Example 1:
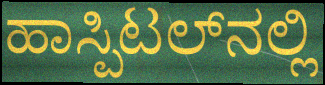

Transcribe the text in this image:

ಹಾಸ್ಪಿಟಲ್‌ನಲ್ಲಿ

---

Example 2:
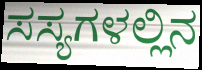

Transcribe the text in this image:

ಸಸ್ಯಗಳಲ್ಲಿನ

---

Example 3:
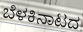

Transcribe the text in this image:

ಬೆಳಕಿನಾಟದ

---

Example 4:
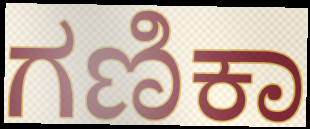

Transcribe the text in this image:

ಗಣಿಕಾ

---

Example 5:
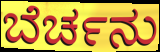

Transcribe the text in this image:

ಬೆರ್ಚನು